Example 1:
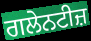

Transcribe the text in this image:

ਗਲੇਨਟੀਜ਼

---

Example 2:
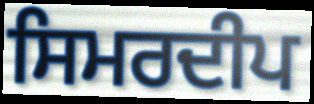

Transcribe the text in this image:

ਸਿਮਰਦੀਪ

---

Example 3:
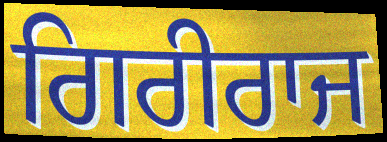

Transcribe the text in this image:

ਗਿਰੀਰਾਜ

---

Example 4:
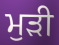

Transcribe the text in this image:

ਮੁੜੀ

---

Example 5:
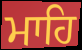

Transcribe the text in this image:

ਮਾਹਿ